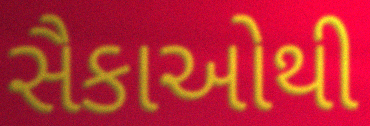
સૈકાઓથી